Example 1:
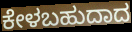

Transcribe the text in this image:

ಕೇಳಬಹುದಾದ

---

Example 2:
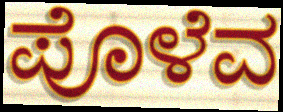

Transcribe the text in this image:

ಪೊಳೆವ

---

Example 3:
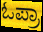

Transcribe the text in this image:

ಓಪ್ರಾ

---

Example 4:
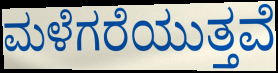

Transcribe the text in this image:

ಮಳೆಗರೆಯುತ್ತವೆ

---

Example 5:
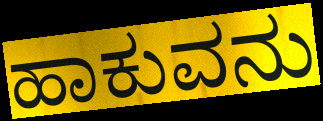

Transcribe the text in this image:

ಹಾಕುವನು